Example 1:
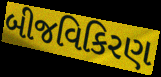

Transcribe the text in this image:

બીજવિકિરણ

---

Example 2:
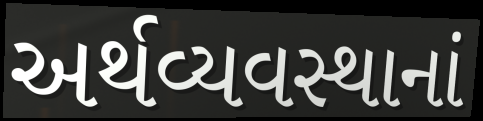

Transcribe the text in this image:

અર્થવ્યવસ્થાનાં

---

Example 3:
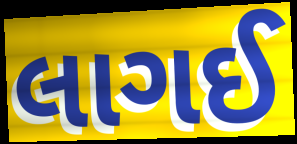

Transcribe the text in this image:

લાગઈ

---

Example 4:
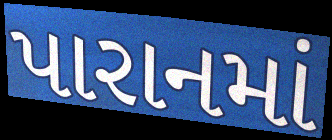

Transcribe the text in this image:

પારાનમાં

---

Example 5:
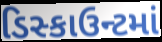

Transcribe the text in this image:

ડિસ્કાઉન્ટમાં